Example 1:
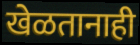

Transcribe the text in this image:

खेळतानाही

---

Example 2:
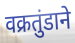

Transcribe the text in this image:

वक्रतुंडाने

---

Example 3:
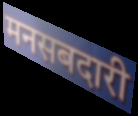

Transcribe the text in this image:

मनसबदारी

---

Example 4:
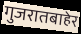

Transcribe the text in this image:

गुजरातबाहेर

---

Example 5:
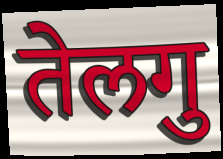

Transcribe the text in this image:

तेलगु